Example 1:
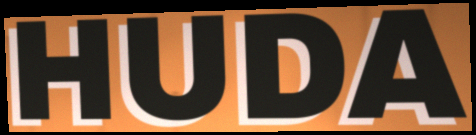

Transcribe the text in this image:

HUDA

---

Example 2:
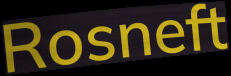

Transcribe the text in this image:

Rosneft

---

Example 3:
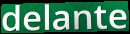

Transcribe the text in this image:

delante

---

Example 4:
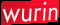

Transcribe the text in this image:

wurin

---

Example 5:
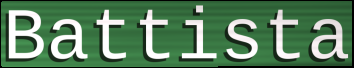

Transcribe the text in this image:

Battista